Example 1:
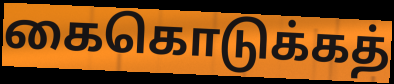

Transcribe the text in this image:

கைகொடுக்கத்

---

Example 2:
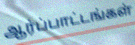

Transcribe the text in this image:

ஆர்ப்பாட்டங்கள்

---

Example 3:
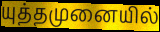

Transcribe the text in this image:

யுத்தமுனையில்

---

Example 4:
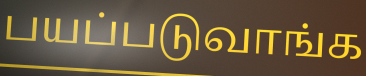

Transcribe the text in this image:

பயப்படுவாங்க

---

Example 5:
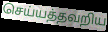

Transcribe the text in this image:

செய்யத்தவறிய